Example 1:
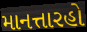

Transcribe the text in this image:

માનત્તારહો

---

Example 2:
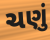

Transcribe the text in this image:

ચણું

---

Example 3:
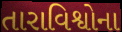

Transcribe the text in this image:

તારાવિશ્વોના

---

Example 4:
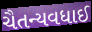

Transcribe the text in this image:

ચૈતન્યવધાઈ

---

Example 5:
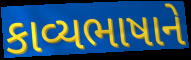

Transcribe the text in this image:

કાવ્યભાષાને